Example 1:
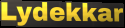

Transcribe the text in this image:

Lydekkar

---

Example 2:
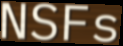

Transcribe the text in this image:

NSFs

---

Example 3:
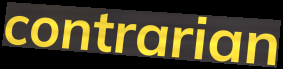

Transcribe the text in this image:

contrarian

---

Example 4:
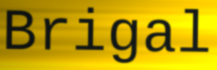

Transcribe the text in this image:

Brigal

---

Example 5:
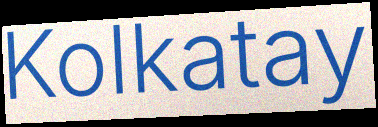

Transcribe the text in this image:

Kolkatay